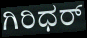
ಗಿರಿಧರ್